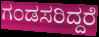
ಗಂಡಸರಿದ್ದರೆ